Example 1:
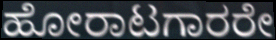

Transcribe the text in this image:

ಹೋರಾಟಗಾರರೇ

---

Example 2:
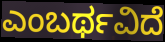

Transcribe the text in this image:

ಎಂಬರ್ಥವಿದೆ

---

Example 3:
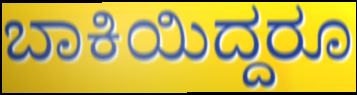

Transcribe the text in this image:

ಬಾಕಿಯಿದ್ದರೂ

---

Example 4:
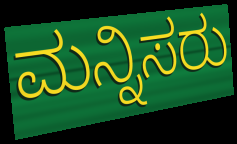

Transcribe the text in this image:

ಮನ್ನಿಸರು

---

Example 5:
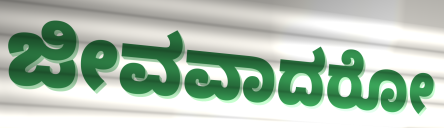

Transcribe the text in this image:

ಜೀವವಾದರೋ